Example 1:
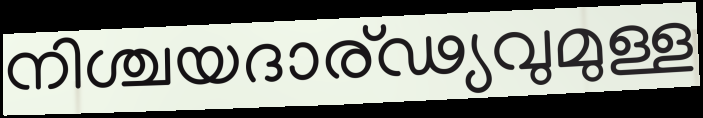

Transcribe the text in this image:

നിശ്ചയദാര്ഢ്യവുമുള്ള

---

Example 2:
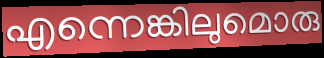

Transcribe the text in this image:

എന്നെങ്കിലുമൊരു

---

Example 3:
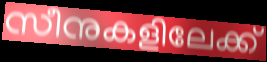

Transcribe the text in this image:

സീനുകളിലേക്ക്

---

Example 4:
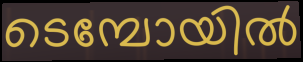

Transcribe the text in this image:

ടെമ്പോയിൽ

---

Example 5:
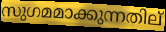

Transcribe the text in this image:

സുഗമമാക്കുന്നതില്